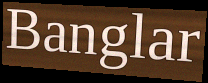
Banglar